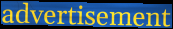
advertisement